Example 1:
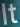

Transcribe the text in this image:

It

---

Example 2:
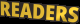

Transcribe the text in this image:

READERS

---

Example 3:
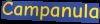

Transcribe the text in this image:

Campanula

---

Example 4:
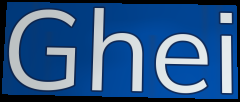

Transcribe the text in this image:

Ghei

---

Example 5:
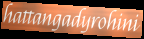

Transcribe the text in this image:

hattangadyrohini